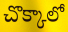
చొక్కాలో